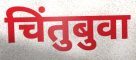
चिंतुबुवा